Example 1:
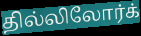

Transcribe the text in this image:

தில்லிலோர்க்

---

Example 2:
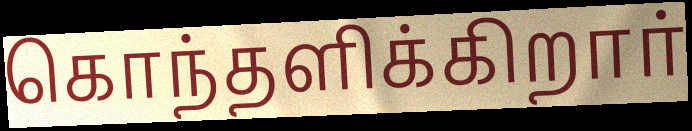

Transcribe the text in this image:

கொந்தளிக்கிறார்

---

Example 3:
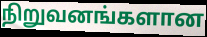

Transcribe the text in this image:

நிறுவனங்களான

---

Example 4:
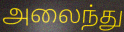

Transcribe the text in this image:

அலைந்து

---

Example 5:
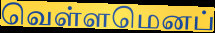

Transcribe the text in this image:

வெள்ளமெனப்